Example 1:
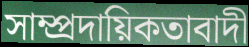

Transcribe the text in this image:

সাম্প্ৰদায়িকতাবাদী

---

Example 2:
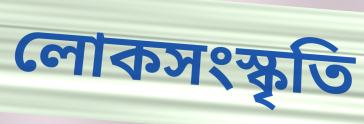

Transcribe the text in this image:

লোকসংস্কৃতি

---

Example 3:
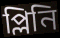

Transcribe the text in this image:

প্লিনি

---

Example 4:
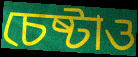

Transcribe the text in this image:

চেষ্টাও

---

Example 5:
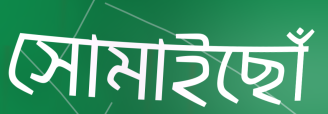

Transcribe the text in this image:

সোমাইছোঁ